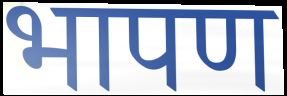
भापण